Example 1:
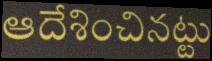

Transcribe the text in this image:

ఆదేశించినట్టు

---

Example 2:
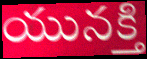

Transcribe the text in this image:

యునక్తి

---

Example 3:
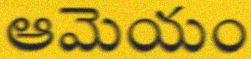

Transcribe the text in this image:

ఆమెయం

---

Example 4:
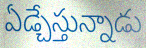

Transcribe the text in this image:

ఏడ్చేస్తున్నాడు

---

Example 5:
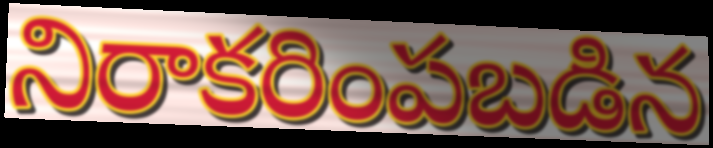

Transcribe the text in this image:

నిరాకరింపబడిన